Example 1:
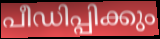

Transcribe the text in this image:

പീഡിപ്പിക്കും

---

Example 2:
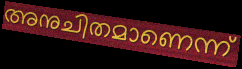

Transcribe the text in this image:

അനുചിതമാണെന്ന്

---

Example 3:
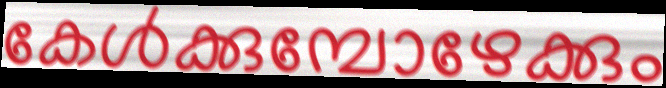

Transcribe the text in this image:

കേൾക്കുമ്പോഴേക്കും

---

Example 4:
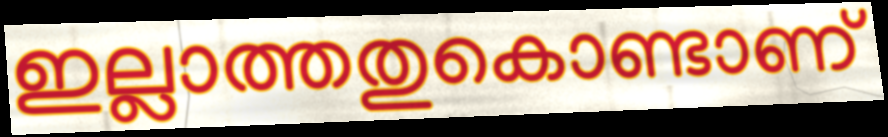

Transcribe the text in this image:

ഇല്ലാത്തതുകൊണ്ടാണ്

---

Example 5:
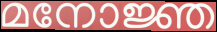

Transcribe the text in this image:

മനോജ്ഞ